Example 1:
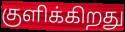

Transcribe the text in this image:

குளிக்கிறது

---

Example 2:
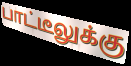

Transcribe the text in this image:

பாட்டீலுக்கு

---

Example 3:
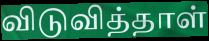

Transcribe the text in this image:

விடுவித்தாள்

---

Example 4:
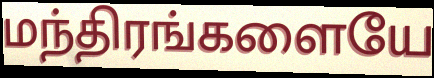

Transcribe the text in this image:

மந்திரங்களையே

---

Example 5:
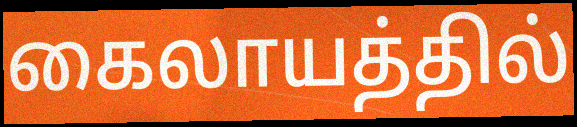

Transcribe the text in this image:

கைலாயத்தில்